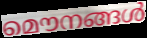
മൌനങ്ങൾ